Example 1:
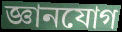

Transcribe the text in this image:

জ্ঞানযোগ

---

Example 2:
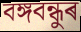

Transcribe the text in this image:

বঙ্গবন্ধুৰ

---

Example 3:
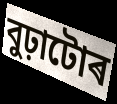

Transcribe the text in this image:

বুঢ়াটোৰ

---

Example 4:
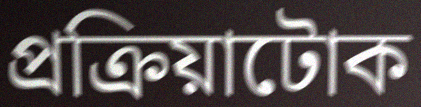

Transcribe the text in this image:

প্ৰক্ৰিয়াটোক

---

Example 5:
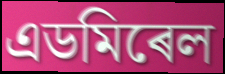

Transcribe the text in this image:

এডমিৰেল